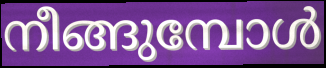
നീങ്ങുമ്പോൾ